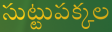
సుట్టుపక్కల